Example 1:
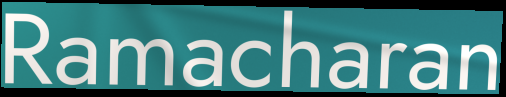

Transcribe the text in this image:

Ramacharan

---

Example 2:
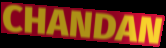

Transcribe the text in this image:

CHANDAN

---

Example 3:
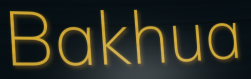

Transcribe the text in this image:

Bakhua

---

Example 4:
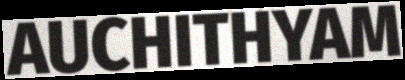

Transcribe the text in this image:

AUCHITHYAM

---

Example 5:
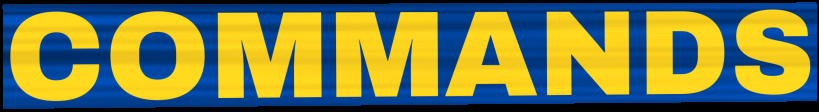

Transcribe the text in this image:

COMMANDS